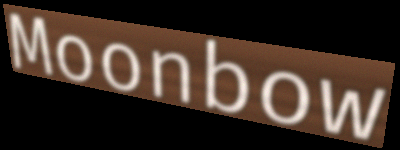
Moonbow